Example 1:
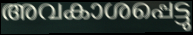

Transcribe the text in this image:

അവകാശപ്പെട്ടു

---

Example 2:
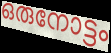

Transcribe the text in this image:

ഒരുനോട്ടം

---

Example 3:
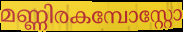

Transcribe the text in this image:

മണ്ണിരകമ്പോസ്റ്റോ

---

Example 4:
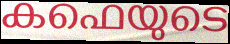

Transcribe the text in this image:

കഫെയുടെ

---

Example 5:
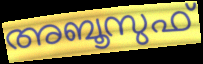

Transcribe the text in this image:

അബൂസുഫ്